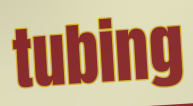
tubing